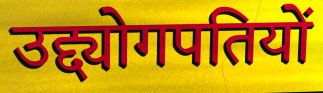
उद्द्योगपतियों